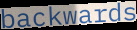
backwards